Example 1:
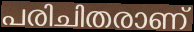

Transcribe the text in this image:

പരിചിതരാണ്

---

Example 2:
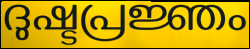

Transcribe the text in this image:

ദുഷ്ടപ്രജ്ഞം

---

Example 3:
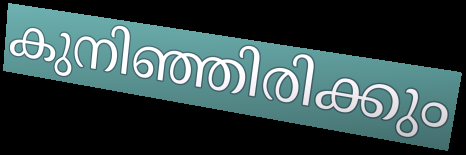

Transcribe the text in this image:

കുനിഞ്ഞിരിക്കും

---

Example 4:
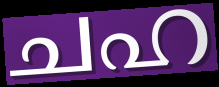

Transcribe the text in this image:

ചഹ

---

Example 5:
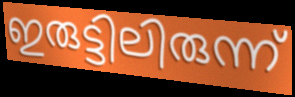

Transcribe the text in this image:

ഇരുട്ടിലിരുന്ന്